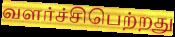
வளர்ச்சிபெற்றது